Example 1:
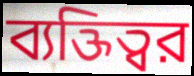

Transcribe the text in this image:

ব্যক্তিত্বর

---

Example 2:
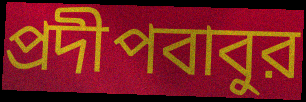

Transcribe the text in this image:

প্রদীপবাবুর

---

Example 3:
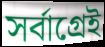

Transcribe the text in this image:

সর্বাগ্রেই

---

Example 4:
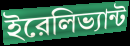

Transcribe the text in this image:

ইরেলিভ্যান্ট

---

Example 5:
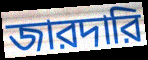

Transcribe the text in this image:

জারদারি